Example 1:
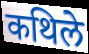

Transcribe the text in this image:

कथिले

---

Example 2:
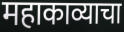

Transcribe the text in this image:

महाकाव्याचा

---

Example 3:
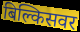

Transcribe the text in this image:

बिल्किसवर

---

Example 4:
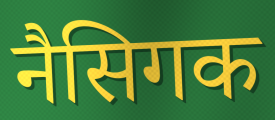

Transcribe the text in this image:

नैसिगक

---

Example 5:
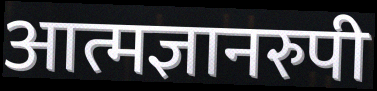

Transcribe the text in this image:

आत्मज्ञानरुपी